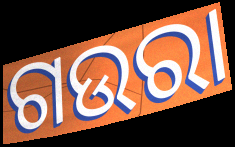
ଗଉରା